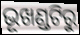
ଭୂଖଣ୍ଡଟିରୁ